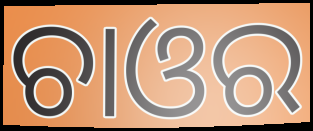
ଚାଓର